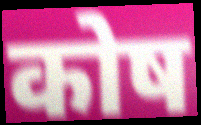
कोष